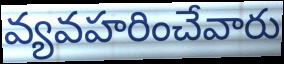
వ్యవహరించేవారు